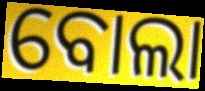
ବୋଲା